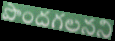
పొందగలనని